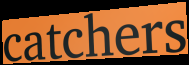
catchers